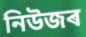
নিউজৰ